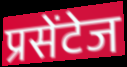
प्रसेंटेज